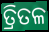
ତ୍ରିତଳ